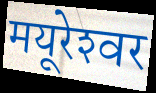
मयूरेश्वर